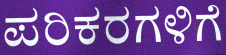
ಪರಿಕರಗಳಿಗೆ